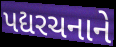
પદ્યરચનાને